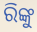
ରିଙ୍କୁ